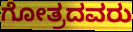
ಗೋತ್ರದವರು